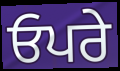
ਓਪਰੇ